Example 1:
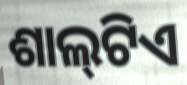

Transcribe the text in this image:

ଶାଲ୍‌ଟିଏ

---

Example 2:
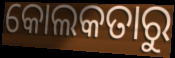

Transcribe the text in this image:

କୋଲକତାରୁ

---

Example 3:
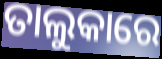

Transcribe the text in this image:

ତାଲୁକାରେ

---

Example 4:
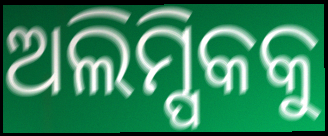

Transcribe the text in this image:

ଅଲିମ୍ପିକକୁ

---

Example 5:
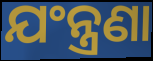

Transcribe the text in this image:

ଯଂନ୍ତ୍ରଣା